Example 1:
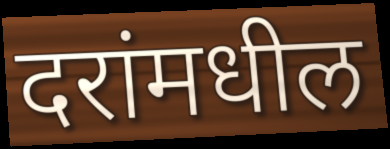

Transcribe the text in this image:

दरांमधील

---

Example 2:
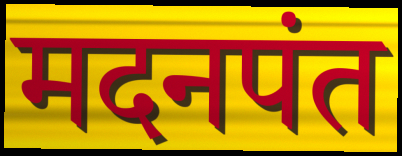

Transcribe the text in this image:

मदनपंत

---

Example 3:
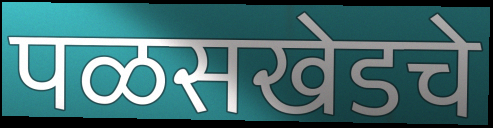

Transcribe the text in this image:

पळसखेडचे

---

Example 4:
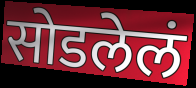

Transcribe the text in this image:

सोडलेलं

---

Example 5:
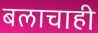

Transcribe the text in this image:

बलाचाही